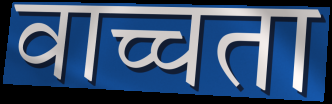
वाच्चता